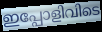
ഇപ്പോളിവിടെ